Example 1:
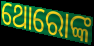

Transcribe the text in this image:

ଥୋରୋଙ୍କ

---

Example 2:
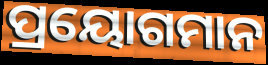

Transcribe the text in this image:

ପ୍ରୟୋଗମାନ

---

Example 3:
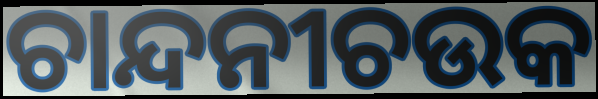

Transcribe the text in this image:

ଚାନ୍ଦନୀଚଉକ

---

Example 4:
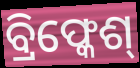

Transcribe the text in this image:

ବ୍ରିଫ୍କେଶ୍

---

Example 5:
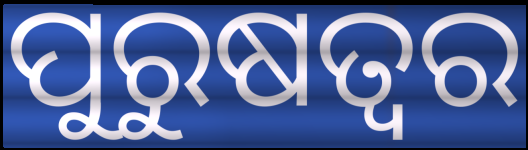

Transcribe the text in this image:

ପୁରୁଷତ୍ଵର